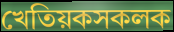
খেতিয়কসকলক